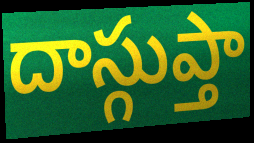
దాస్గుప్తా